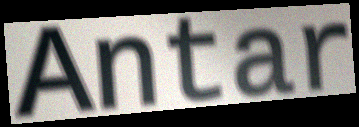
Antar